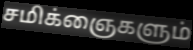
சமிக்ஞைகளும்